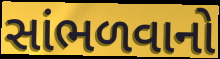
સાંભળવાનો